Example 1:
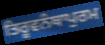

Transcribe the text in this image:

ਤਿਰੂਵਨੰਥਾਪੁਰਮ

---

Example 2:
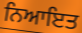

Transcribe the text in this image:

ਨਿਆਇਤ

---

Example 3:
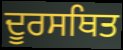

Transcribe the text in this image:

ਦੂਰਸਥਿਤ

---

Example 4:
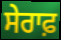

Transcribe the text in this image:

ਸੇਰਾਫ਼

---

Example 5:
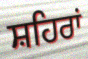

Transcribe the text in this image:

ਸ਼ਹਿਰਾਂ